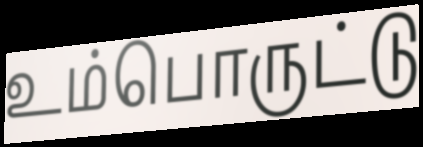
உம்பொருட்டு